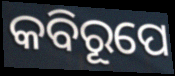
କବିରୂପେ